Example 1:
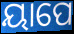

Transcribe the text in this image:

ୟାପେ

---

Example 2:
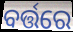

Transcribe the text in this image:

ବର୍ତ୍ତରେ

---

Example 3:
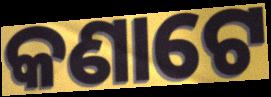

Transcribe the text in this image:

କଣାଟେ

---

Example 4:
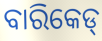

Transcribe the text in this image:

ବାରିକେଡ୍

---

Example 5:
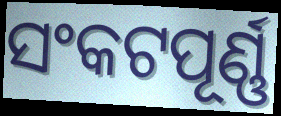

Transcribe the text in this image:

ସଂକଟପୂର୍ଣ୍ଣ